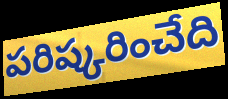
పరిష్కరించేది